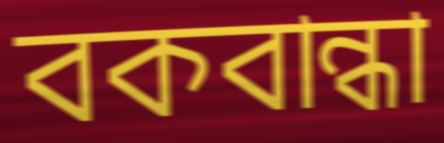
বকবান্ধা